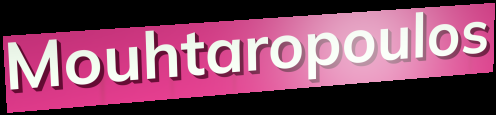
Mouhtaropoulos